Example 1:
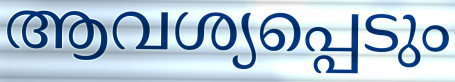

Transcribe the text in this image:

ആവശ്യപ്പെടും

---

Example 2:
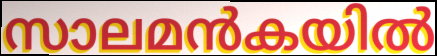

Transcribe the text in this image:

സാലമൻകയിൽ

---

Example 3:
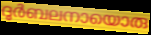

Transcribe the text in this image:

ദുർബലനായൊരു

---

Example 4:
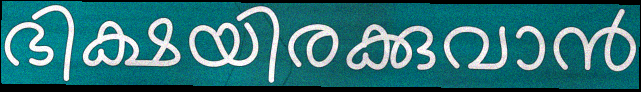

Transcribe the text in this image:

ഭിക്ഷയിരക്കുവാൻ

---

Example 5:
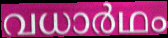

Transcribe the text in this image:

വധാർഥം